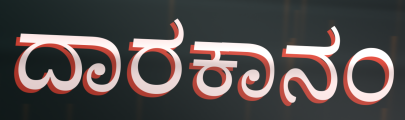
ದಾರಕಾನಂ